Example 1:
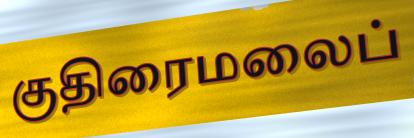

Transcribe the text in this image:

குதிரைமலைப்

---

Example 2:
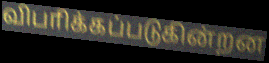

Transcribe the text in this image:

விபரிக்கப்படுகின்றன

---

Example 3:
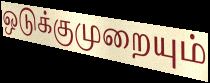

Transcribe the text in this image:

ஒடுக்குமுறையும்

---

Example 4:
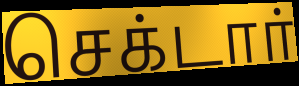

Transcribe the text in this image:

செக்டார்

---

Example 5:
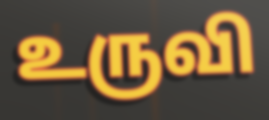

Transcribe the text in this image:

உருவி